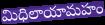
మిధిలాయామహం